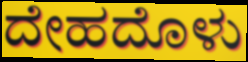
ದೇಹದೊಳು